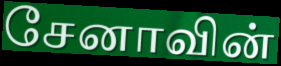
சேனாவின்